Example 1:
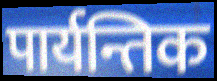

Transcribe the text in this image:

पार्यन्तिक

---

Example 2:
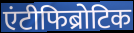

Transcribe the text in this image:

एंटीफिब्रोटिक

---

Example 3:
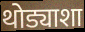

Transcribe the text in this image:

थोड्याशा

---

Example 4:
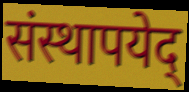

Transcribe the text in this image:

संस्थापयेद्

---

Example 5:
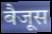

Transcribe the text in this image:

बैजूस